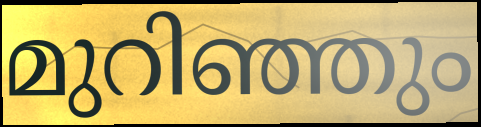
മുറിഞ്ഞും